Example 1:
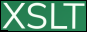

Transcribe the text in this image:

XSLT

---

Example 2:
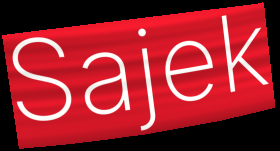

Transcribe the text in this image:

Sajek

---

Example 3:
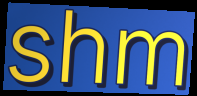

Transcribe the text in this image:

shm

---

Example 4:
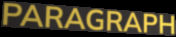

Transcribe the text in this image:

PARAGRAPH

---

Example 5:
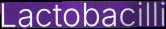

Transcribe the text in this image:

Lactobacilli